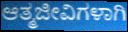
ಆತ್ಮಜೀವಿಗಳಾಗಿ